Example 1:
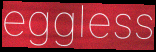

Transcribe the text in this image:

eggless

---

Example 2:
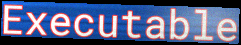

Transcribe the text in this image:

Executable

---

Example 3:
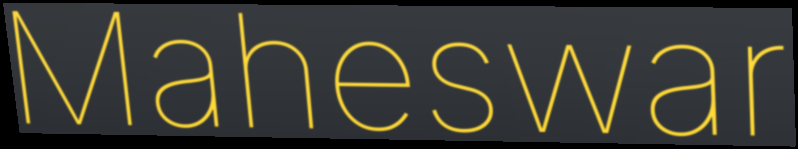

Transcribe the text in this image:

Maheswar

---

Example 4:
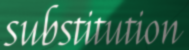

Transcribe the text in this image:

substitution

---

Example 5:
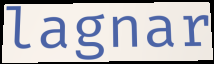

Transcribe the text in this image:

lagnar